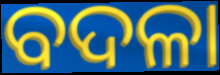
ବଦଳା